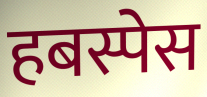
हबस्पेस